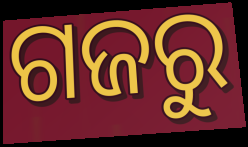
ଗଜରୁ